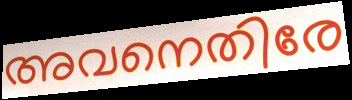
അവനെതിരേ